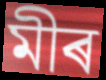
মীৰ